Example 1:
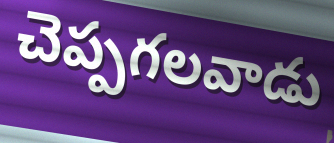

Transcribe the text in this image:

చెప్పగలవాడు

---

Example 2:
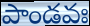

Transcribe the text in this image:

పాండవః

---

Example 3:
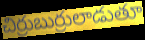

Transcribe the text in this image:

చిర్రుబుర్రులాడుతూ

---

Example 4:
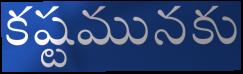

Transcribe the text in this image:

కష్టమునకు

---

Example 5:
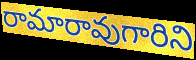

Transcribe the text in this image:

రామారావుగారిని